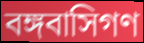
বঙ্গবাসিগণ